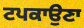
ਟਪਕਾਉਣਾ